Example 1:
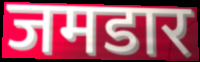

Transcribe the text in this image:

जमडार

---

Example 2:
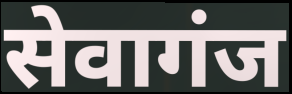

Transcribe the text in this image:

सेवागंज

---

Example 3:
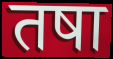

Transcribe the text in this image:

तषा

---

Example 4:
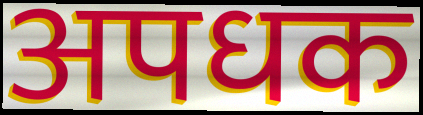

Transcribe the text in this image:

अपधक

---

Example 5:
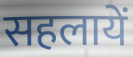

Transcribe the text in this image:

सहलायें